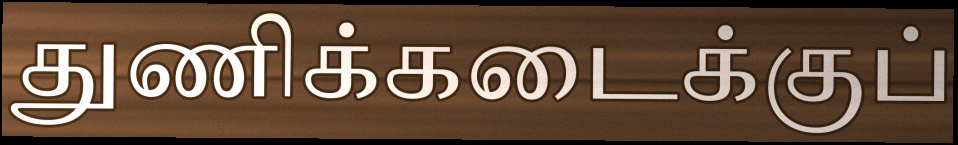
துணிக்கடைக்குப்